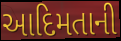
આદિમતાની